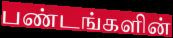
பண்டங்களின்